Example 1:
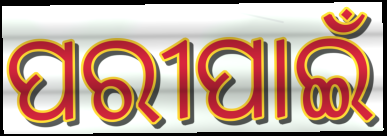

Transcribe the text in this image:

ପରୀପାଇଁ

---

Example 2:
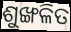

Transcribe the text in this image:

ଶୁଙ୍ଖଳିତ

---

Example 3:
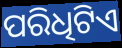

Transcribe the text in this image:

ପରିଧିଟିଏ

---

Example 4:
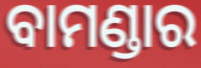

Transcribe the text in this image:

ବାମଣ୍ଡାର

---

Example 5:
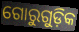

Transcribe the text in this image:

ଗୋରୁଗୁଡ଼ିକ